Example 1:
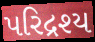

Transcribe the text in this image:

પરિદ્રશ્ય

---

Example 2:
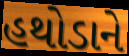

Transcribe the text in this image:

હથોડાને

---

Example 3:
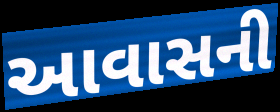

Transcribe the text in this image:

આવાસની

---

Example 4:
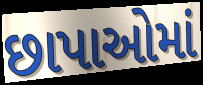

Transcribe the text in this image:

છાપાઓમાં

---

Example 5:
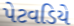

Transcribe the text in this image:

પેટવડિયે